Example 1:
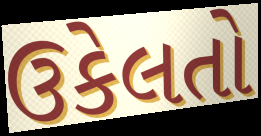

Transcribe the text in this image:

ઉકેલતો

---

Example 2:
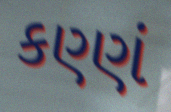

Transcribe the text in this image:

કણ્ણં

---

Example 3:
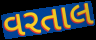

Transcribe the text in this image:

વરતાલ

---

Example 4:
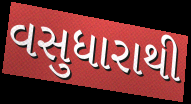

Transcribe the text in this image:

વસુધારાથી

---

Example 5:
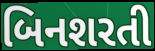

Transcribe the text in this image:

બિનશરતી